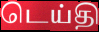
டெய்தி